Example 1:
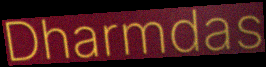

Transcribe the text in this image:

Dharmdas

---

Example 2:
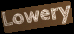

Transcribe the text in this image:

Lowery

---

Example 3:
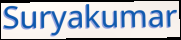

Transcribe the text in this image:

Suryakumar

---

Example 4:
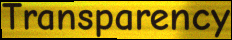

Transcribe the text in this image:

Transparency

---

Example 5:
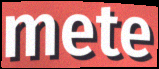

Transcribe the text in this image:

mete